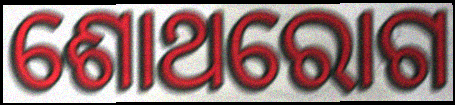
ଶୋଥରୋଗ